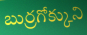
బుర్రగోక్కుని